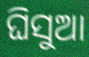
ଘିସୁଆ